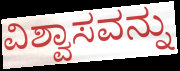
ವಿಶ್ವಾಸವನ್ನು